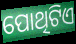
ପୋଥିଟିଏ